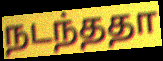
நடந்ததா